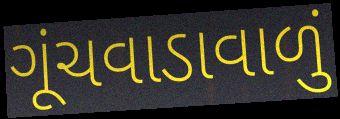
ગૂંચવાડાવાળું